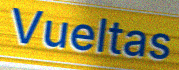
Vueltas